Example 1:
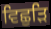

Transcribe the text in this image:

ਵਿਛੁੜਿ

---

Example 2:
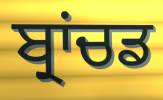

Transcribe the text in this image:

ਬ੍ਰਾਂਚਡ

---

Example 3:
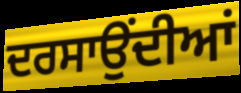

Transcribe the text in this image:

ਦਰਸਾਉਂਦੀਆਂ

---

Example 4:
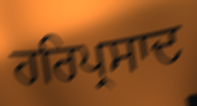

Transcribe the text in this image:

ਹਰਿਪ੍ਰਸਾਦ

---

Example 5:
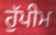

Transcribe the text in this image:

ਹੁੱਪੀਮ